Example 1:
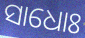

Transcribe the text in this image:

ସାଧୋଃ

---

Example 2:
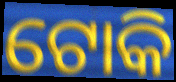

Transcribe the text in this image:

ଟୋକି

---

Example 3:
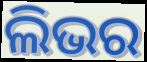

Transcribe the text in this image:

ଲିଭର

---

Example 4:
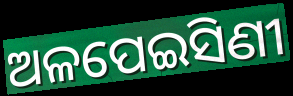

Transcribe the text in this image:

ଅଳପେଇସିଣୀ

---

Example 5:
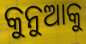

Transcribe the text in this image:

କୁନୁଆକୁ